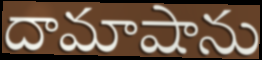
దామాషాను